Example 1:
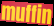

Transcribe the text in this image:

muffin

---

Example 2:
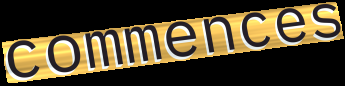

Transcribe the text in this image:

commences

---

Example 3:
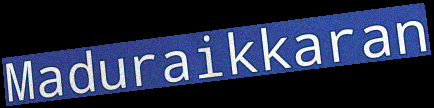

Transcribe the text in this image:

Maduraikkaran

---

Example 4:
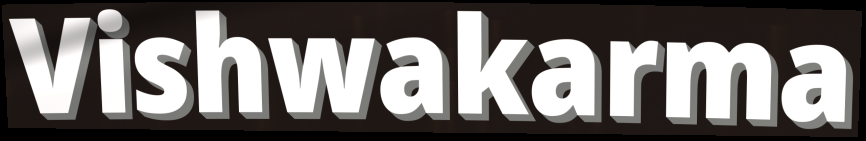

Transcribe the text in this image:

Vishwakarma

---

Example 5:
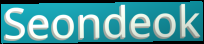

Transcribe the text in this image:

Seondeok